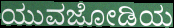
ಯುವಜೋಡಿಯ